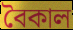
বৈকাল